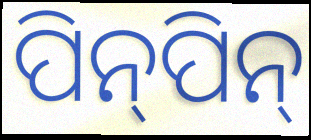
ପିନ୍‍ପିନ୍